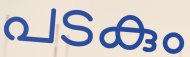
പടകും